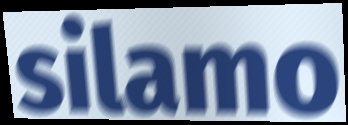
silamo